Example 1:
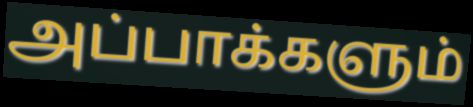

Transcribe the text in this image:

அப்பாக்களும்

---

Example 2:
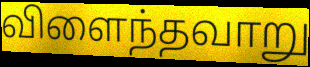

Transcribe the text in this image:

விளைந்தவாறு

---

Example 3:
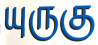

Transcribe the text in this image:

யுருகு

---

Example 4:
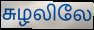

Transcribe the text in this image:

சுழலிலே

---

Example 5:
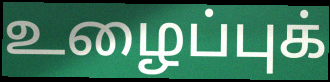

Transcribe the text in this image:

உழைப்புக்